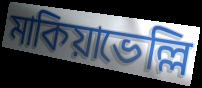
মাকিয়াভেল্লি